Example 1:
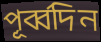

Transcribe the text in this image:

পূর্ব্বদিন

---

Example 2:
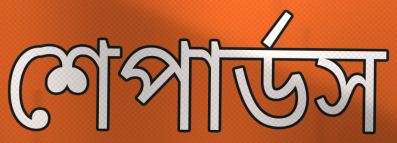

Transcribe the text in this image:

শেপার্ডস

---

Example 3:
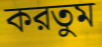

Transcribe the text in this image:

করতুম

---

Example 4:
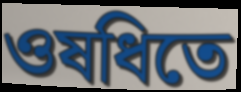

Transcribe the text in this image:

ওষধিতে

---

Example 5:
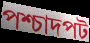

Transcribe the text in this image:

পশ্চাদপট